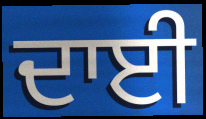
ਦਾਈ